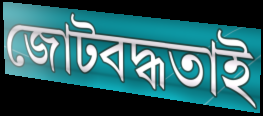
জোটবদ্ধতাই